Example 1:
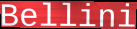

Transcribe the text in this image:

Bellini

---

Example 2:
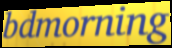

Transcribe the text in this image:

bdmorning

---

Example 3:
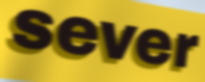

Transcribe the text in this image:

sever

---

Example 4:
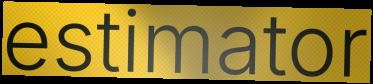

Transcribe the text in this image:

estimator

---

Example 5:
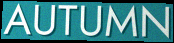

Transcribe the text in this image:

AUTUMN